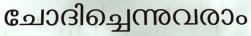
ചോദിച്ചെന്നുവരാം